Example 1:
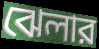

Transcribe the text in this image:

ঝেলার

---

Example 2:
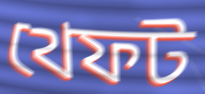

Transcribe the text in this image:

থেফট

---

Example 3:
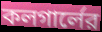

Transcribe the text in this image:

কলগার্লের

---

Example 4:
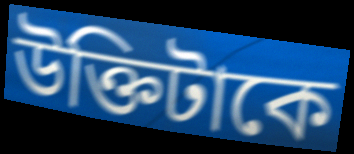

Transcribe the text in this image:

উক্তিটাকে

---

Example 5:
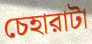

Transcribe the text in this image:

চেহারাটা